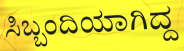
ಸಿಬ್ಬಂದಿಯಾಗಿದ್ದ